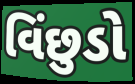
વિંછુડો